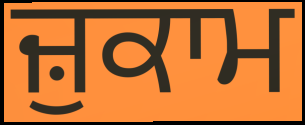
ਜ਼ੁਕਾਮ